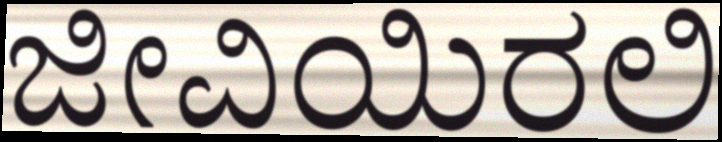
ಜೀವಿಯಿರಲಿ